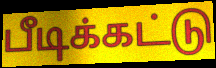
பீடிக்கட்டு